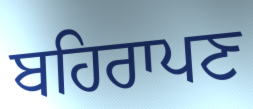
ਬਹਿਰਾਪਣ